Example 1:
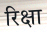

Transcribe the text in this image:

रिक्षा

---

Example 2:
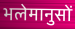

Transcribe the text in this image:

भलेमानुसों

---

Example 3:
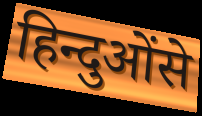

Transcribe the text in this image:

हिन्दुओंसे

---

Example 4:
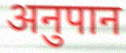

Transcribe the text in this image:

अनुपान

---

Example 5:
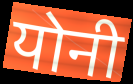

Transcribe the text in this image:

योनी